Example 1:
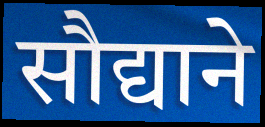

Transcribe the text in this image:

सौद्याने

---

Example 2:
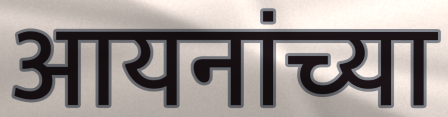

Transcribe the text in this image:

आयनांच्या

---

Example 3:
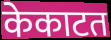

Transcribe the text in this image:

केकाटत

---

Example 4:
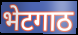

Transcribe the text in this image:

भेटगाठ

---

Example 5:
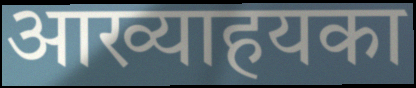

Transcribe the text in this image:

आख्याहयका